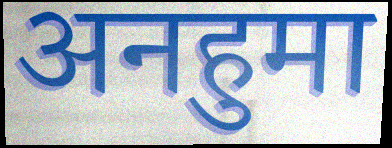
अनहुमा